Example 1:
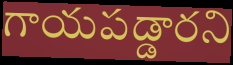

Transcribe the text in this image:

గాయపడ్డారని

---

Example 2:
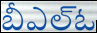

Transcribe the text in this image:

బీఎల్ఓ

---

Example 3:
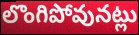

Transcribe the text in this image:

లొంగిపోవునట్లు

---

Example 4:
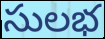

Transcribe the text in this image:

సులభ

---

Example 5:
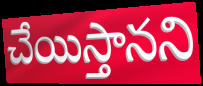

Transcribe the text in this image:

చేయిస్తానని